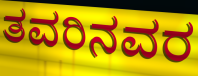
ತವರಿನವರ